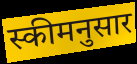
स्कीमनुसार